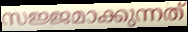
സജ്ജമാക്കുന്നത്